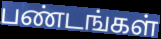
பண்டங்கள்